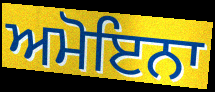
ਅਮੋਇਨਾ